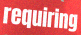
requiring